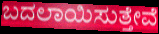
ಬದಲಾಯಿಸುತ್ತೇವೆ